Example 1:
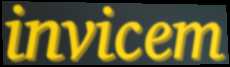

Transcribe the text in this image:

invicem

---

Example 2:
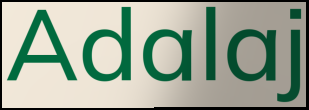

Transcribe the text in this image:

Adalaj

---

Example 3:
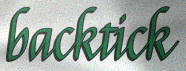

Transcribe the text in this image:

backtick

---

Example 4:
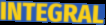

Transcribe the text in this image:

INTEGRAL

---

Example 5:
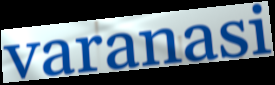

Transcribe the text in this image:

varanasi